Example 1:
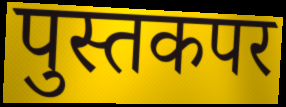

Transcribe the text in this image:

पुस्तकपर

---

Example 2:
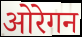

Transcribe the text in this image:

ओरेगन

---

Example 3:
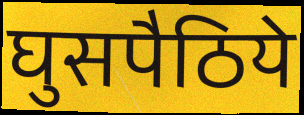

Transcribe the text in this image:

घुसपैठिये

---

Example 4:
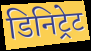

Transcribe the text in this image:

डिनिट्रेट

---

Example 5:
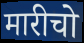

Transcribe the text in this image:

मारीचो